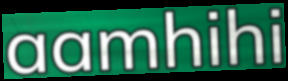
aamhihi